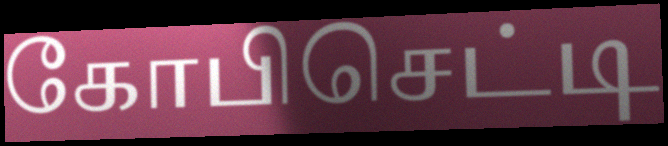
கோபிசெட்டி